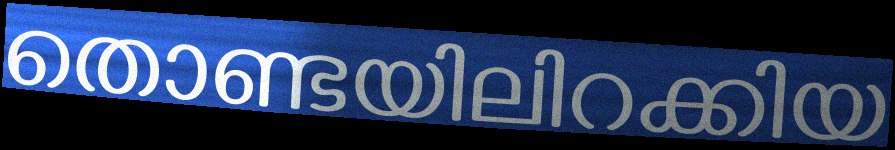
തൊണ്ടയിലിറക്കിയ